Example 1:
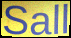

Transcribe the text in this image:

Sall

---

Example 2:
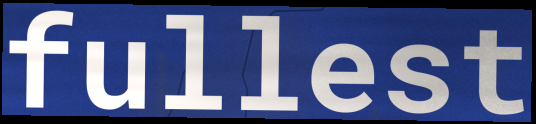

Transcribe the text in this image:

fullest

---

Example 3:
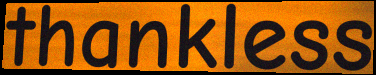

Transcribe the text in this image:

thankless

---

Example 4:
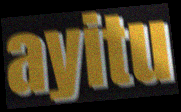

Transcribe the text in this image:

ayitu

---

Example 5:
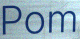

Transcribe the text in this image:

Pom